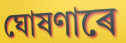
ঘোষণাৰে